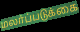
மலர்ப்படுக்கை